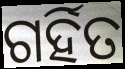
ଗର୍ହିତ